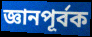
জ্ঞানপূর্বক